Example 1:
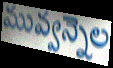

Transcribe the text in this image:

మువ్వన్నెల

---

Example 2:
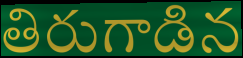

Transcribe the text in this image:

తిరుగాడిన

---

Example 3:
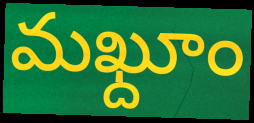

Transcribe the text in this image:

మఖ్దూం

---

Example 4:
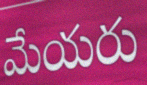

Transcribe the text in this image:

మేయరు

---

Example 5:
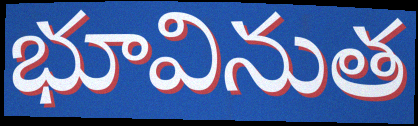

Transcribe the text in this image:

భూవినుత